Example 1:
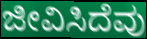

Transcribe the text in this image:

ಜೀವಿಸಿದೆವು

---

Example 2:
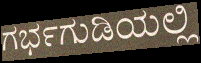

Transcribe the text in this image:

ಗರ್ಭಗುಡಿಯಲ್ಲಿ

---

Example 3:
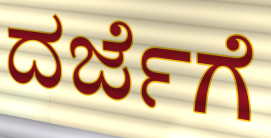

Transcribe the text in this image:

ದರ್ಜೆಗೆ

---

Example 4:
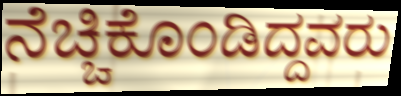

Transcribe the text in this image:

ನೆಚ್ಚಿಕೊಂಡಿದ್ದವರು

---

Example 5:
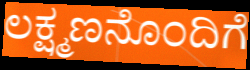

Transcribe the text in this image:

ಲಕ್ಷ್ಮಣನೊಂದಿಗೆ